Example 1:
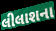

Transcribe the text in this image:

લીલાશના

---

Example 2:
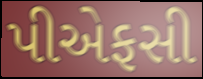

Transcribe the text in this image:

પીએફસી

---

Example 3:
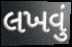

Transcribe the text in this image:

લખવું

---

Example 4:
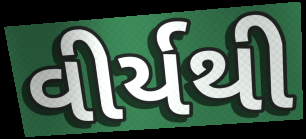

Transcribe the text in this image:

વીર્યથી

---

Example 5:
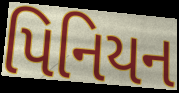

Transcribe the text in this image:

પિનિયન